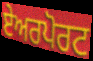
ਏਅਰਪੋਰਟ